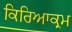
ਕਿਰਿਆਕ੍ਰਮ